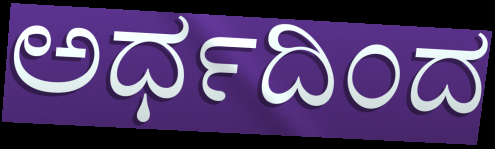
ಅರ್ಧದಿಂದ